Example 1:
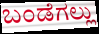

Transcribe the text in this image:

ಬಂಡೆಗಲ್ಲು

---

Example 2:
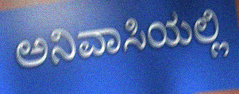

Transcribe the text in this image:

ಅನಿವಾಸಿಯಲ್ಲಿ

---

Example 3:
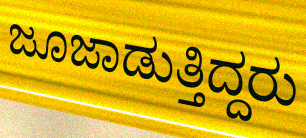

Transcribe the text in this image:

ಜೂಜಾಡುತ್ತಿದ್ದರು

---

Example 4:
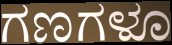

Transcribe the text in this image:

ಗಣಗಳೂ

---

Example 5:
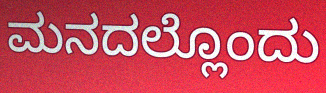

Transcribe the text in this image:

ಮನದಲ್ಲೊಂದು